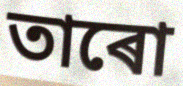
তাৰো